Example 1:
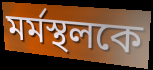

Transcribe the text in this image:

মর্মস্থলকে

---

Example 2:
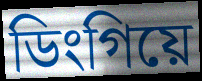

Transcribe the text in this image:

ডিংগিয়ে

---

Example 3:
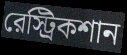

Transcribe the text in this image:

রেস্ট্রিকশান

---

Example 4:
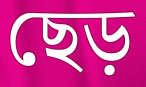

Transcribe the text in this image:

ছেড়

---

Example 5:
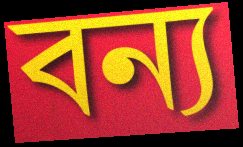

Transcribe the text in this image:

বন্য